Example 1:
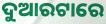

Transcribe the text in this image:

ଦୁଆରଟାରେ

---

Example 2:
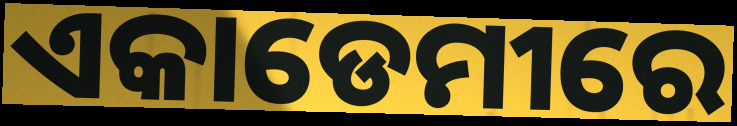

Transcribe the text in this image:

ଏକାଡେମୀରେ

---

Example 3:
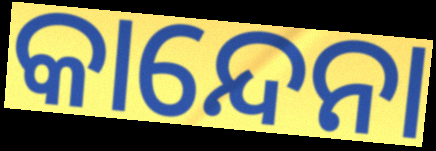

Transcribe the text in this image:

କାନ୍ଦେନା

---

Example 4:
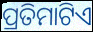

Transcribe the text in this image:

ପ୍ରତିମାଟିଏ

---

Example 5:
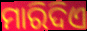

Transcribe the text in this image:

ମାରିଦିଏ